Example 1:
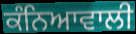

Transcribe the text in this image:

ਕੰਨਿਆਵਾਲੀ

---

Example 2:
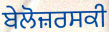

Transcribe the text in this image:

ਬੇਲੋਜ਼ਰਸਕੀ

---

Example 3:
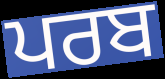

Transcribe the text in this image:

ਪਰਬ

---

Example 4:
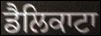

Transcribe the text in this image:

ਡੈਲਿਕਾਟਾ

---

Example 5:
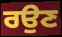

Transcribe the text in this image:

ਰਉਣ